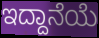
ಇದ್ದಾನೆಯೆ